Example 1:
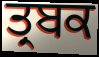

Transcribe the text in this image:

ਤ੍ਰਬਕ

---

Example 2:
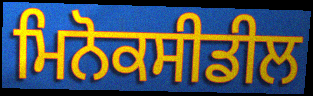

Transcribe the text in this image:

ਮਿਨੋਕਸੀਡੀਲ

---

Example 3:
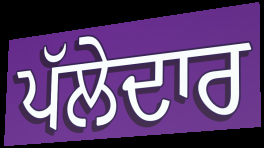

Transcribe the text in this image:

ਪੱਲੇਦਾਰ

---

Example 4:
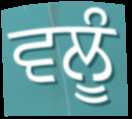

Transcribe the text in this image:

ਵਲੂੰ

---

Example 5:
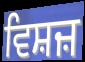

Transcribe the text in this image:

ਵਿਸ਼ਜ਼